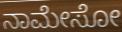
ನಾಮೇಸೋ